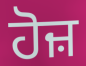
ਹੋਜ਼